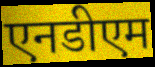
एनडीएम